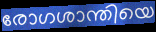
രോഗശാന്തിയെ